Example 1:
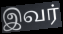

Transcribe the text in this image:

இவர்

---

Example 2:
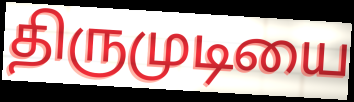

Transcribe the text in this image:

திருமுடியை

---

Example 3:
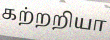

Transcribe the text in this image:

கற்றறியா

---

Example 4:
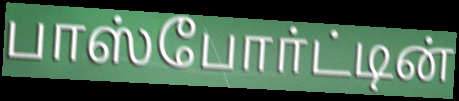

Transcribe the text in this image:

பாஸ்போர்ட்டின்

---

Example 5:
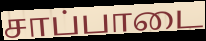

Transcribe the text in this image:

சாப்பாடை